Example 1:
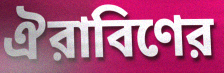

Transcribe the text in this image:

ঐরাবিণের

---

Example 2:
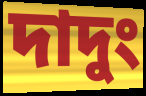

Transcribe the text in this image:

দাদুং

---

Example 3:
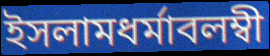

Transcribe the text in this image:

ইসলামধর্মাবলম্বী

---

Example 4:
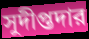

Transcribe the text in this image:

সুদীপ্তদার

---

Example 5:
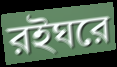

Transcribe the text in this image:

রইঘরে